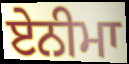
ਏਨੀਮਾ